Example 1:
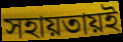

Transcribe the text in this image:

সহায়তায়ই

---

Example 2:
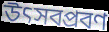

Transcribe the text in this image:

উৎসবপ্রবণ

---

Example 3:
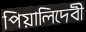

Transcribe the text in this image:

পিয়ালিদেবী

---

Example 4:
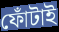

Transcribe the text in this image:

ফোঁটাই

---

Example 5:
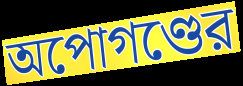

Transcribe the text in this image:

অপোগণ্ডের